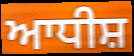
ਆਧੀਸ਼